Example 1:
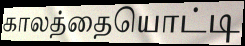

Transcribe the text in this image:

காலத்தையொட்டி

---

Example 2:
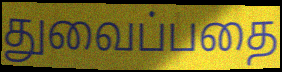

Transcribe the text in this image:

துவைப்பதை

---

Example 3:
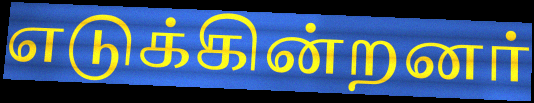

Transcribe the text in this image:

எடுக்கின்றனர்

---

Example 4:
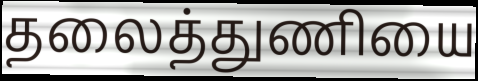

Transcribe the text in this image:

தலைத்துணியை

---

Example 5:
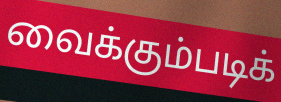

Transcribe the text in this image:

வைக்கும்படிக்